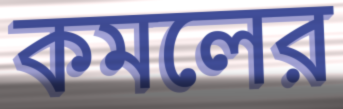
কমলের